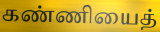
கண்ணியைத்